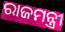
ରାଜମନ୍ତ୍ରୀ